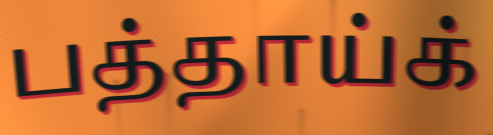
பத்தாய்க்